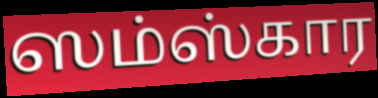
ஸம்ஸ்கார